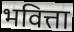
भवित्ता